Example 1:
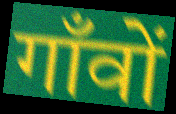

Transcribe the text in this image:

गाँवों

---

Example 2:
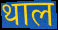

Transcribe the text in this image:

थाल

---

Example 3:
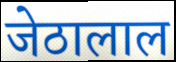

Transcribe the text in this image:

जेठालाल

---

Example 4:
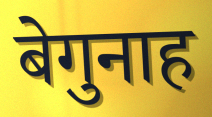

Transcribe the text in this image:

बेगुनाह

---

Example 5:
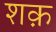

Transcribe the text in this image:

शक़